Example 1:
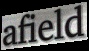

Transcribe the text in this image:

afield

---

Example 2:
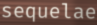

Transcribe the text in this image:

sequelae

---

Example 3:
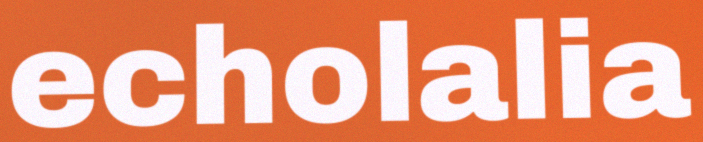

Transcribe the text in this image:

echolalia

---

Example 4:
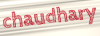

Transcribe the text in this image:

chaudhary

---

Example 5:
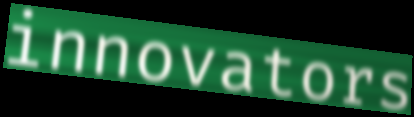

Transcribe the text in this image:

innovators